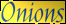
Onions